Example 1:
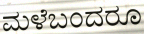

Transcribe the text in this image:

ಮಳೆಬಂದರೂ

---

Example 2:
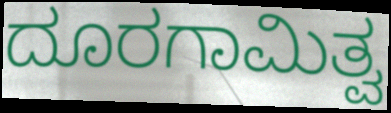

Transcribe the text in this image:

ದೂರಗಾಮಿತ್ವ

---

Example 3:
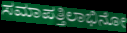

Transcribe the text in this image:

ಸಮಾಪತ್ತಿಲಾಭಿನೋ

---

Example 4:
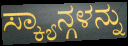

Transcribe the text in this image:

ಸ್ಕ್ಯಾನ್ಗಳನ್ನು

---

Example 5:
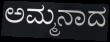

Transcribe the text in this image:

ಅಮ್ಮನಾದ